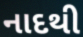
નાદથી